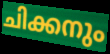
ചിക്കനും